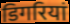
डिगरियां